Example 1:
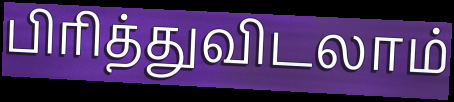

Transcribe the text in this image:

பிரித்துவிடலாம்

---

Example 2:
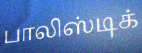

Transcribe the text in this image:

பாலிஸ்டிக்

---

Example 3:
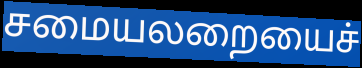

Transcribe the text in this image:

சமையலறையைச்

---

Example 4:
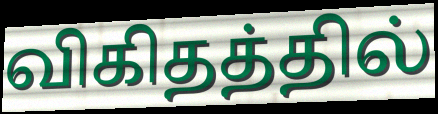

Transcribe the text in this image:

விகிதத்தில்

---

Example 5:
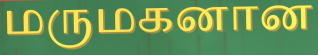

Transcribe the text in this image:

மருமகனான